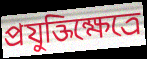
প্রযুক্তিক্ষেত্রে